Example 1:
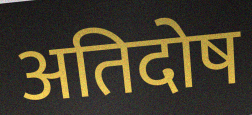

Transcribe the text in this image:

अतिदोष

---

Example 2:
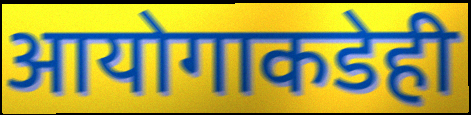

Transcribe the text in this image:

आयोगाकडेही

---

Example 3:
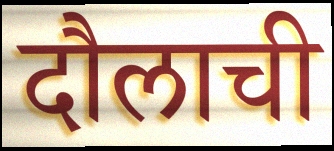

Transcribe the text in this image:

दौलाची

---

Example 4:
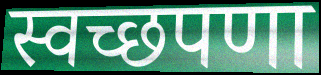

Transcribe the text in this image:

स्वच्छपणा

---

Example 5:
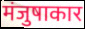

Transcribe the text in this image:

मंजुषाकार